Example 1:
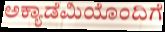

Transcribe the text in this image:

ಅಕ್ಯಾಡೆಮಿಯೊಂದಿಗೆ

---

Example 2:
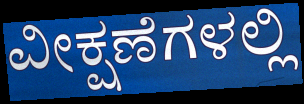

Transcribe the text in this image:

ವೀಕ್ಷಣೆಗಳಲ್ಲಿ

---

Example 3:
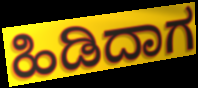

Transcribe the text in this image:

ಹಿಡಿದಾಗ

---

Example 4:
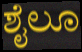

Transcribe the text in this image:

ಶೈಲೂ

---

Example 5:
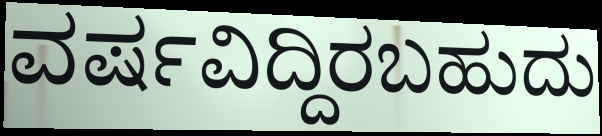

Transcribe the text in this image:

ವರ್ಷವಿದ್ದಿರಬಹುದು